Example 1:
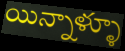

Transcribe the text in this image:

యిన్నాళ్ళూ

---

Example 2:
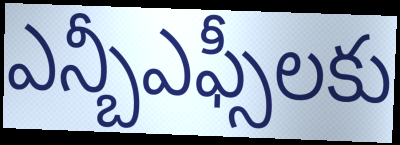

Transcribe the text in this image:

ఎన్బీఎఫ్సీలకు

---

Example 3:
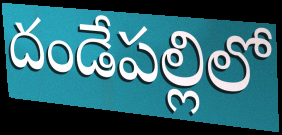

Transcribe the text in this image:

దండేపల్లిలో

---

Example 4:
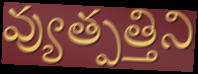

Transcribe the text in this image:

వ్యుత్పత్తిని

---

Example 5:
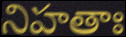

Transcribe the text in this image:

నిహతాః